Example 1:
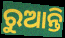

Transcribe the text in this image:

ରୁଆନ୍ତି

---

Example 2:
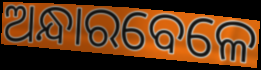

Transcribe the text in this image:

ଅନ୍ଧାରବେଳେ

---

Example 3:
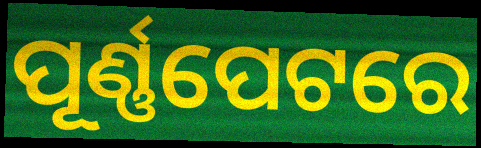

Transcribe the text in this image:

ପୂର୍ଣ୍ଣପେଟରେ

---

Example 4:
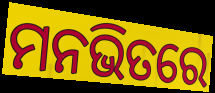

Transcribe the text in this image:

ମନଭିତରେ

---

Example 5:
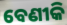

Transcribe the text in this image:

ବେଣୀକି